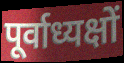
पूर्वाध्यक्षों